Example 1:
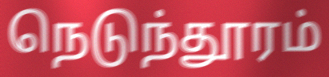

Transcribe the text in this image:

நெடுந்தூரம்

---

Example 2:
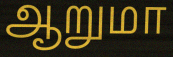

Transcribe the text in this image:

ஆறுமா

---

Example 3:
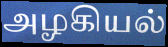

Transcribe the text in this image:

அழகியல்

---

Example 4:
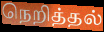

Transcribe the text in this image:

நெறித்தல்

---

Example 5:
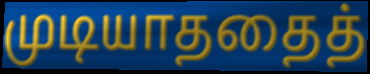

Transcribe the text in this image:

முடியாததைத்